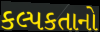
કલ્પકતાનો